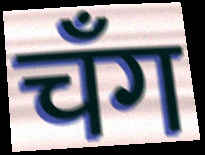
चँग